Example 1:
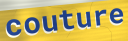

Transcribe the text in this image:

couture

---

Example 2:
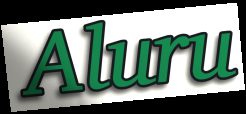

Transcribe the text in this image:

Aluru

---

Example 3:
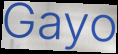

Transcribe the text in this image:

Gayo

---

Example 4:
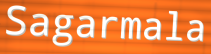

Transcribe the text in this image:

Sagarmala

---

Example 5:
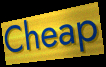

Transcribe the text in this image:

Cheap